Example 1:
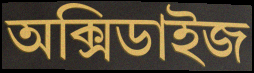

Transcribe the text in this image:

অক্সিডাইজ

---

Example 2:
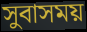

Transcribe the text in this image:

সুবাসময়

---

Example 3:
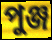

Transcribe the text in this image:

পুঞ্জ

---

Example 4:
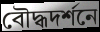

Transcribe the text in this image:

বৌদ্ধদর্শনে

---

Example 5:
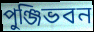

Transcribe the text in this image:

পুঞ্জিভবন